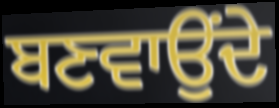
ਬਣਵਾਉਂਦੇ